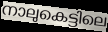
നാലുകെട്ടിലെ